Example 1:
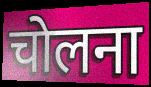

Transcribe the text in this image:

चोलना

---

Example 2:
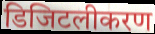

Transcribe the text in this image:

डिजिटलीकरण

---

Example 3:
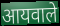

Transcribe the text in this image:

आयवाले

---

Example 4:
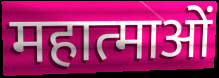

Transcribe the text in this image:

महात्‍माओं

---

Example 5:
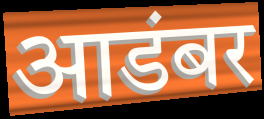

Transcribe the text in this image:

आडंबर